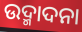
ଉଦ୍ମାଦନା